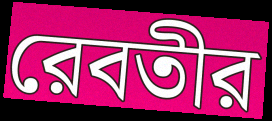
রেবতীর